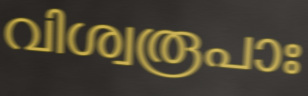
വിശ്വരൂപാഃ